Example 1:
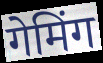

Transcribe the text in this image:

गेमिंग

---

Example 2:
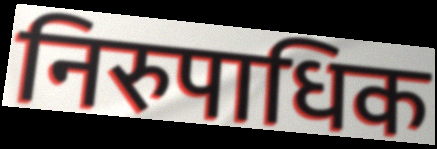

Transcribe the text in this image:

निरुपाधिक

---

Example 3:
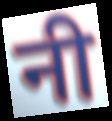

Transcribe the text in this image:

नी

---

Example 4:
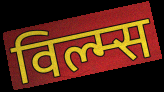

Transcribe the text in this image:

विल्म्स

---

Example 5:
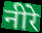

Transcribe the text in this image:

नीरे